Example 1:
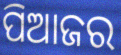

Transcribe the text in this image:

ପିଆଜର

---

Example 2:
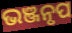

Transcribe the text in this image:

ଭଞ୍ଜନୃପ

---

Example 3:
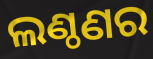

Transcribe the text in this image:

ଲଣ୍ଠଣର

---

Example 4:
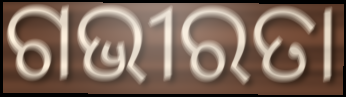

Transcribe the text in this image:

ଗଭୀରତା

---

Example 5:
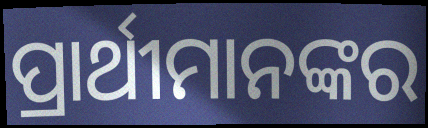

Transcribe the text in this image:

ପ୍ରାର୍ଥୀମାନଙ୍କର